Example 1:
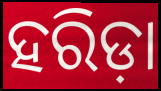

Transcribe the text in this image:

ହରିଡ଼ା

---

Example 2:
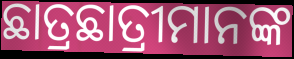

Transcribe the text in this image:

ଛାତ୍ରଛାତ୍ରୀମାନଙ୍କ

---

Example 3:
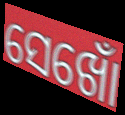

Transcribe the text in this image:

ସେଖୋଁ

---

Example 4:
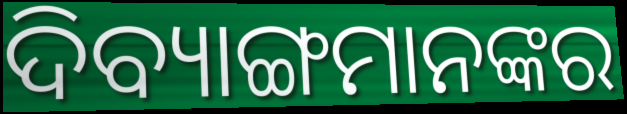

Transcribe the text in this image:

ଦିବ୍ୟାଙ୍ଗମାନଙ୍କର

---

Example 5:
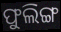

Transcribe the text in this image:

ଫୁଲିଙ୍ଗ